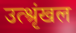
उत्श्रृंखल